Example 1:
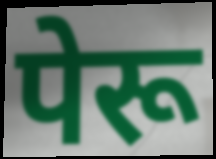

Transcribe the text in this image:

पेरू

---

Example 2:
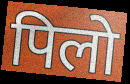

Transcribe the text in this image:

पिलो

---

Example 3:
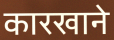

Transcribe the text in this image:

कारखाने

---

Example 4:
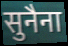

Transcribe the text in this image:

सुनैना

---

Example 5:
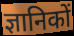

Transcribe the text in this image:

ज्ञानिकों